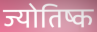
ज्योतिष्क